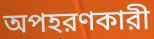
অপহরণকারী